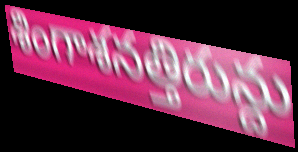
శింగాశనత్తిరున్దు